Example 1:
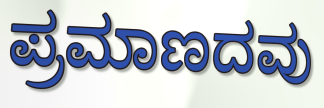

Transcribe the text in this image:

ಪ್ರಮಾಣದವು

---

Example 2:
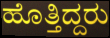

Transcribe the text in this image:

ಹೊತ್ತಿದ್ದರು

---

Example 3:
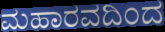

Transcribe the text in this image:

ಮಹಾರವದಿಂದ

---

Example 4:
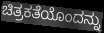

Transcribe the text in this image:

ಚಿತ್ರಕತೆಯೊಂದನ್ನು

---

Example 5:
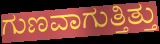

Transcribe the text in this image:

ಗುಣವಾಗುತ್ತಿತ್ತು